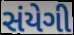
સંયેગી